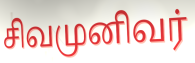
சிவமுனிவர்